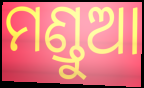
ମଣ୍ଡୁଆ